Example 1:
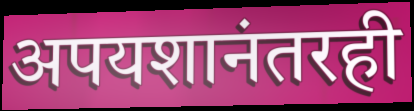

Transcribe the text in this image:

अपयशानंतरही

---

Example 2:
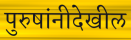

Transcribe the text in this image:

पुरुषांनीदेखील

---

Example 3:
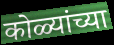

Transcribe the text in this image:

कोळ्यांच्या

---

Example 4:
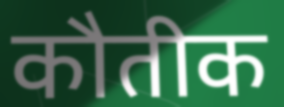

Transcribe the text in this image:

कौतीक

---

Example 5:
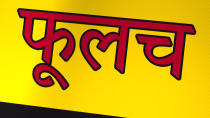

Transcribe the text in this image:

फूलच